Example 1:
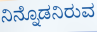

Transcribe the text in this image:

ನಿನ್ನೊಡನಿರುವ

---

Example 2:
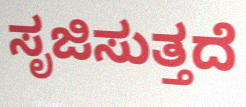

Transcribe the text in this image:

ಸೃಜಿಸುತ್ತದೆ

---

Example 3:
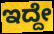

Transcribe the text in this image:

ಇದ್ದೇ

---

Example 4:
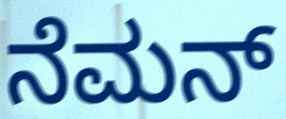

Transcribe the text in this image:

ನೆಮನ್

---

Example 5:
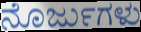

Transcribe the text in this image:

ನೊರ್ಜುಗಳು